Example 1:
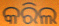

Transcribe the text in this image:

କରିଲ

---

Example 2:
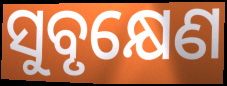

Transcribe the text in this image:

ସୁବୃକ୍ଷେଣ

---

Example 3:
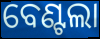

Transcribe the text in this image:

ବେଣ୍ଟଲା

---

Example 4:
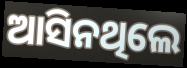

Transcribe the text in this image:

ଆସିନଥିଲେ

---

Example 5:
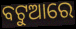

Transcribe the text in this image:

ବଟୁଆରେ